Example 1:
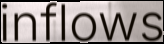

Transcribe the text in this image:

inflows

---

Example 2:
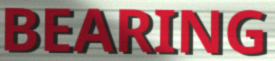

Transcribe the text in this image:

BEARING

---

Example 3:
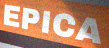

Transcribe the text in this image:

EPICA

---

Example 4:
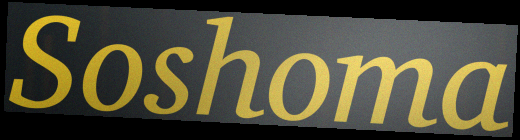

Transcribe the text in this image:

Soshoma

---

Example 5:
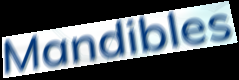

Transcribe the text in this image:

Mandibles